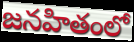
జనహితంలో